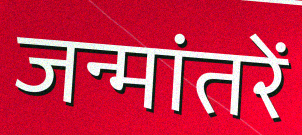
जन्मांतरें